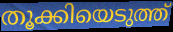
തൂക്കിയെടുത്ത്